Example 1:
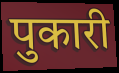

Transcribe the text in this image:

पुकारी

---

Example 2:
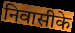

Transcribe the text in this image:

निवासीके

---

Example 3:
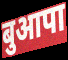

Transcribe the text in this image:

बुआपा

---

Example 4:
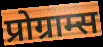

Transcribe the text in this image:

प्रोग्राम्स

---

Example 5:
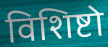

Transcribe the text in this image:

विशिष्टो